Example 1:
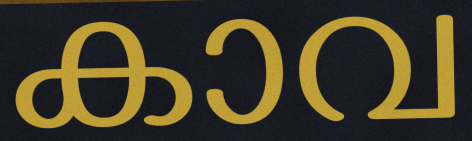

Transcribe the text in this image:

കാവ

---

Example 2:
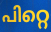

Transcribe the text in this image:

പിറ്റെ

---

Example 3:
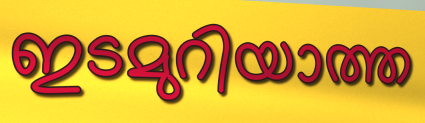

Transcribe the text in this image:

ഇടമുറിയാത്ത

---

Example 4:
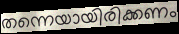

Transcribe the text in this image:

തന്നെയായിരിക്കണം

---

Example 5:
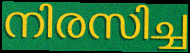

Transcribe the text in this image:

നിരസിച്ച